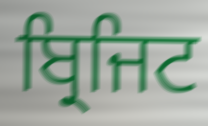
ਬ੍ਰਿਜਿਟ